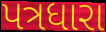
પત્રધારા